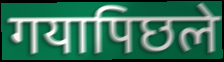
गयापिछले